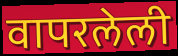
वापरलेली